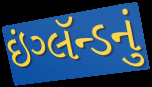
ઇંગ્લૅન્ડનું